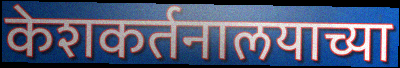
केशकर्तनालयाच्या